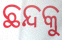
ଛନ୍ଦକୁ